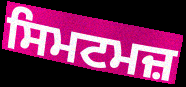
ਸਿਮਟਮਜ਼